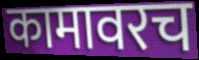
कामावरच